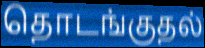
தொடங்குதல்